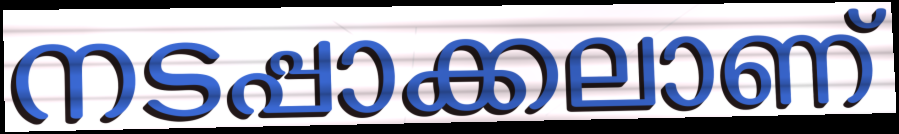
നടപ്പാക്കലാണ്